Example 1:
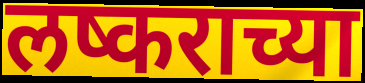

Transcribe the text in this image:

लष्कराच्या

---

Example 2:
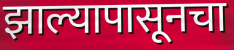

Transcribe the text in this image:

झाल्यापासूनचा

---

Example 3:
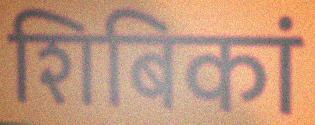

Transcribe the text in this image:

शिबिकां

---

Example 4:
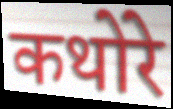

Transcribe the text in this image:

कथोरे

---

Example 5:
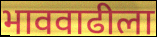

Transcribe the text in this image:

भाववाढीला